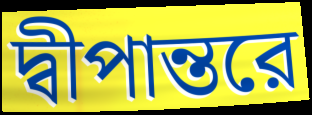
দ্বীপান্তরে